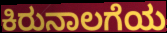
ಕಿರುನಾಲಗೆಯ